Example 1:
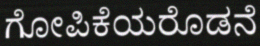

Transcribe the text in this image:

ಗೋಪಿಕೆಯರೊಡನೆ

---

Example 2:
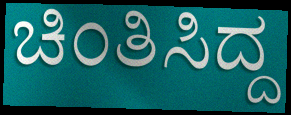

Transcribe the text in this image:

ಚಿಂತಿಸಿದ್ದ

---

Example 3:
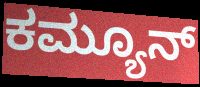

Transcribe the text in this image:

ಕಮ್ಯೂನ್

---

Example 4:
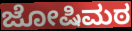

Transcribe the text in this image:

ಜೋಷಿಮಠ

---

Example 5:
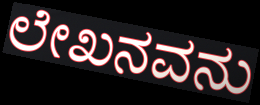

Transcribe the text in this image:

ಲೇಖನವನು